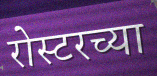
रोस्टरच्या